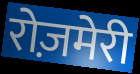
रोज़मेरी